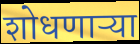
शोधणाऱ्या